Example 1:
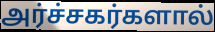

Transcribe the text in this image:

அர்ச்சகர்களால்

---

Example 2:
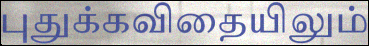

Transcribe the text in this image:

புதுக்கவிதையிலும்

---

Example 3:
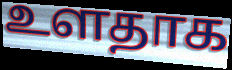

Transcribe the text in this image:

உளதாக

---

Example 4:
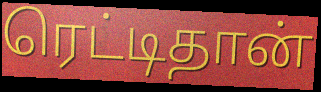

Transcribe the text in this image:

ரெட்டிதான்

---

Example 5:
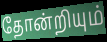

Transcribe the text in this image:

தோன்றியும்